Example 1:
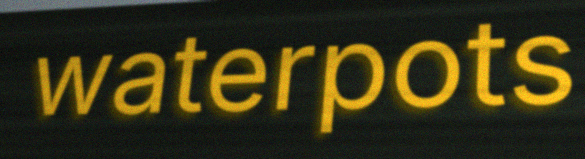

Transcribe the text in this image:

waterpots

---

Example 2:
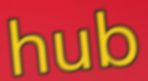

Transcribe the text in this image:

hub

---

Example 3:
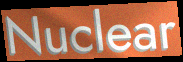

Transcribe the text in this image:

Nuclear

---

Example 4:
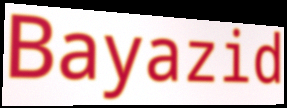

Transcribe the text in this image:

Bayazid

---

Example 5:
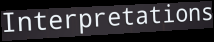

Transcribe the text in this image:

Interpretations